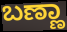
ಬಣ್ಣಾ